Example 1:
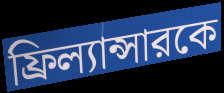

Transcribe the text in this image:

ফ্রিল্যান্সারকে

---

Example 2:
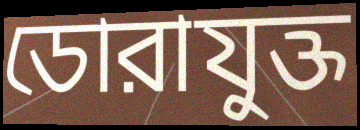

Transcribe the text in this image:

ডোরাযুক্ত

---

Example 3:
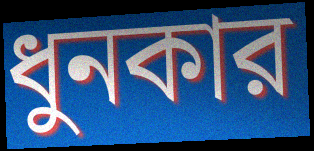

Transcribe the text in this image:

ধুনকার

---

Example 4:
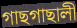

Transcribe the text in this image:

গাছগাছালী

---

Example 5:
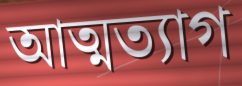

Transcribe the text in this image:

আত্মত্যাগ